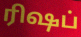
ரிஷப்